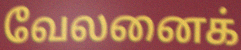
வேலனைக்